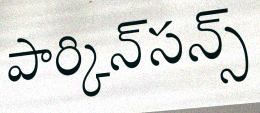
పార్కిన్‌సన్స్